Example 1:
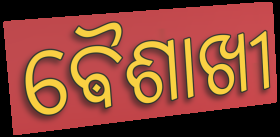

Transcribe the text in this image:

ଵୈଶାଖୀ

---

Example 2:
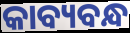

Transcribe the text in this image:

କାବ୍ୟବନ୍ଧ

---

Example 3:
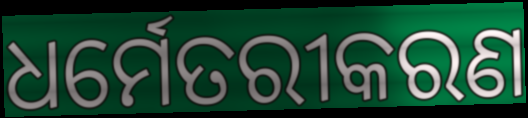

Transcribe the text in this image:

ଧର୍ମେତରୀକରଣ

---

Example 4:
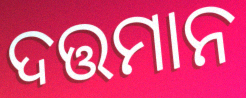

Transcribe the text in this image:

ଦତ୍ତମାନ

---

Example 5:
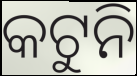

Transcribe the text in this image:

କଟୁନି